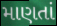
માણતાં